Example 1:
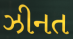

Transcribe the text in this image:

ઝીનત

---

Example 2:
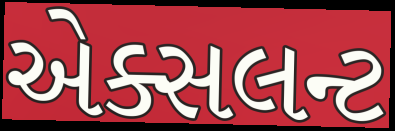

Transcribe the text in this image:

એક્સલન્ટ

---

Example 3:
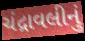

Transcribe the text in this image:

ચંદ્રાવલીનું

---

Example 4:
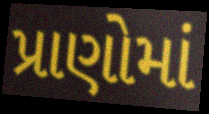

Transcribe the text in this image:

પ્રાણોમાં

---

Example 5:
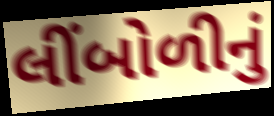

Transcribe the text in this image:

લીંબોળીનું